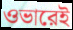
ওভারেই